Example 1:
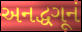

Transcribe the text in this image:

અનદ્ધગૂનં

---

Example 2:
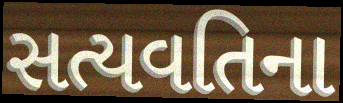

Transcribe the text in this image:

સત્યવતિના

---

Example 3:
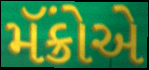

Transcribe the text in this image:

મૅંક્રોએ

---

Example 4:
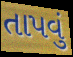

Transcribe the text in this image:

તાપવું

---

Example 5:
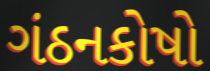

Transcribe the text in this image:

ગંઠનકોષો